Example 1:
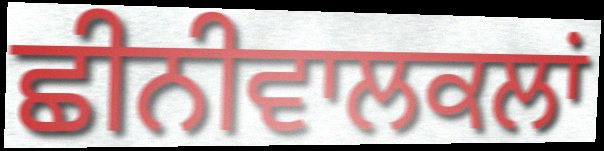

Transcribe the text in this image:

ਛੀਨੀਵਾਲਕਲਾਂ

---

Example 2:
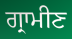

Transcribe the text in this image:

ਗ੍ਰਾਮੀਣ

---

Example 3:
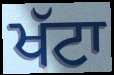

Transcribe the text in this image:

ਖੱਟਾ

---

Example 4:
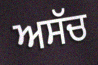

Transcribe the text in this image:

ਅਸੱਚ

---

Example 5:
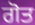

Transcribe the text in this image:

ਗੋਤ